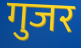
गुजर